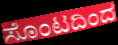
ಸೊಂಟದಿಂದ